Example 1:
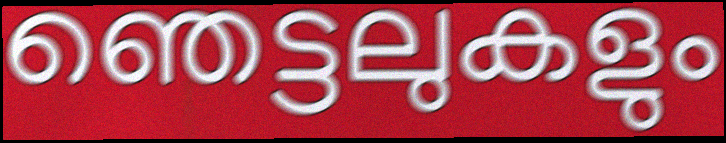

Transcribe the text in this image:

ഞെട്ടലുകളും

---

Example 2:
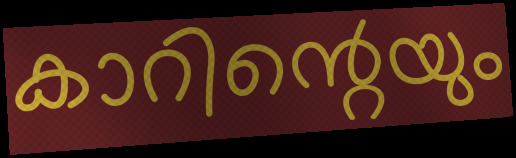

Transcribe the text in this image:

കാറിന്റെയും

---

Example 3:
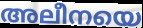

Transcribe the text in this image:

അലീനയെ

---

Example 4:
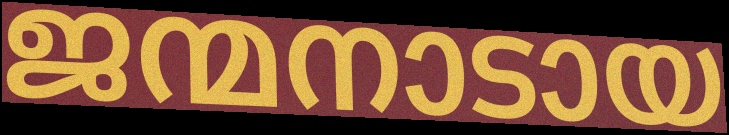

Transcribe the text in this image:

ജന്മനാടായ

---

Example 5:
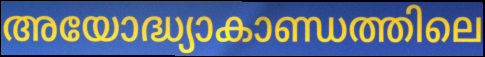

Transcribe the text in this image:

അയോദ്ധ്യാകാണ്ഡത്തിലെ